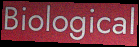
Biological